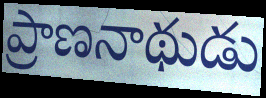
ప్రాణనాథుడు